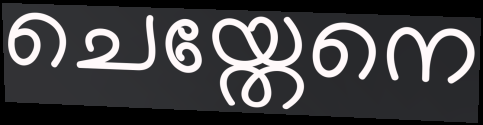
ചെയ്തേനെ